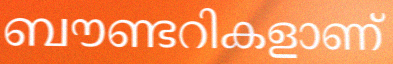
ബൗണ്ടറികളാണ്